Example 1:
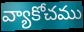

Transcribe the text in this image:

వ్యాకోచము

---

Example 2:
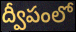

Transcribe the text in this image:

ద్వీపంలో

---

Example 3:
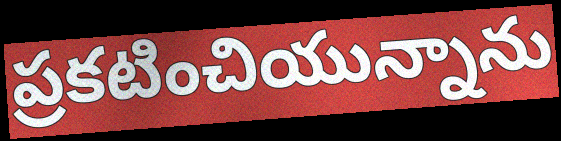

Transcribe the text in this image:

ప్రకటించియున్నాను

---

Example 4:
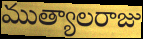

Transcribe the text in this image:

ముత్యాలరాజు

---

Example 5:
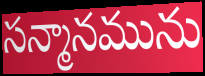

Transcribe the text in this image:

సన్మానమును